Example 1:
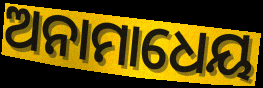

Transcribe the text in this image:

ଅନାମାଧେୟ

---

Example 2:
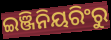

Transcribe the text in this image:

ଇଞ୍ଜିନିୟରିଂରୁ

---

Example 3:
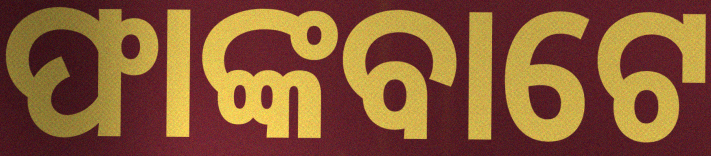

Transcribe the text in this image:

ଫାଙ୍କବାଟେ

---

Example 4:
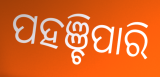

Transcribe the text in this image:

ପହଞ୍ଚିପାରି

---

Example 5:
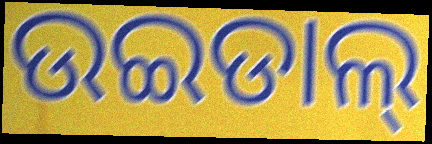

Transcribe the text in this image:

ଉଇଡାଲ୍